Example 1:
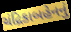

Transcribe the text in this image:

ચંદ્રિકાબહેનનું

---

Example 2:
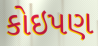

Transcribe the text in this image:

કોઇપણ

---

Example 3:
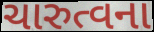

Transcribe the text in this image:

ચારુત્વના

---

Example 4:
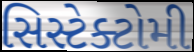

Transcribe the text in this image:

સિસ્ટેક્ટોમી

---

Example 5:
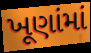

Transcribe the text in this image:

ખૂણાંમાં